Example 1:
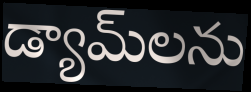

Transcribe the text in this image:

డ్యామ్‌లను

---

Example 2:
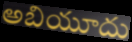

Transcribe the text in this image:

అబియూదు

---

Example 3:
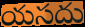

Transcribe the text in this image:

యసదు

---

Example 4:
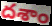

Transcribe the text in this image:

దశాం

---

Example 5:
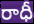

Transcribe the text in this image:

రాధీ